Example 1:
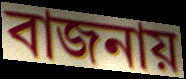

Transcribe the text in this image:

বাজনায়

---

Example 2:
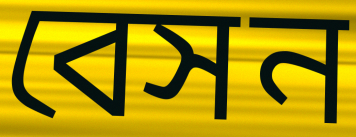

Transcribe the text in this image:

বেসন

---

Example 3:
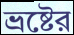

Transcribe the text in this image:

ভ্রষ্টের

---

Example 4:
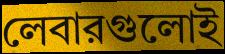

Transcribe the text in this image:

লেবারগুলোই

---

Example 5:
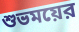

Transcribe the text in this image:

শুভময়ের